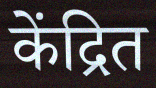
केंद्रित